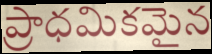
ప్రాధమికమైన